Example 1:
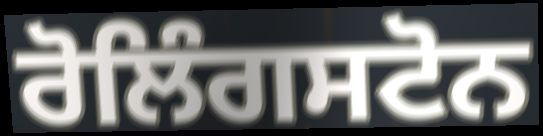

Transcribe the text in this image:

ਰੋਲਿੰਗਸਟੋਨ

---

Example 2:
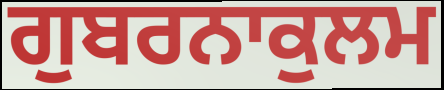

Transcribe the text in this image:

ਗੁਬਰਨਾਕੁਲਮ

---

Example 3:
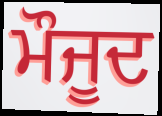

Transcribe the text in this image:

ਮੌਜੂਦ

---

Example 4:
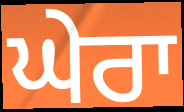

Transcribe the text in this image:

ਘੇਰਾ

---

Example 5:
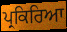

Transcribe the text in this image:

ਪ੍ਰਕਿਰਿਆ